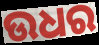
ଉଧର